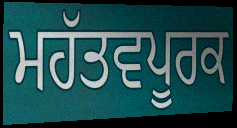
ਮਹੱਤਵਪੂਰਕ